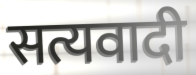
सत्यवादी